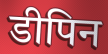
डीपिन